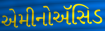
એમીનોઍસિડ